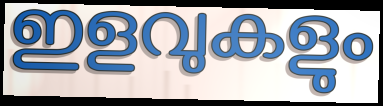
ഇളവുകളും